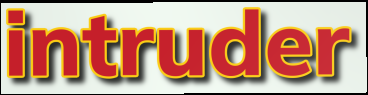
intruder